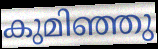
കുമിഞ്ഞു